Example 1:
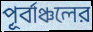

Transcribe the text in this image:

পূর্বাঞ্চলের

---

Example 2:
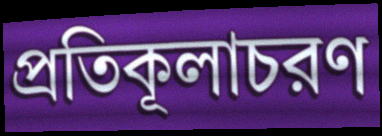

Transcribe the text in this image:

প্রতিকূলাচরণ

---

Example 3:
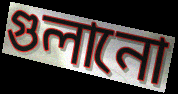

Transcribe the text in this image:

গুলানো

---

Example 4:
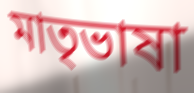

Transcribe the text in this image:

মাতৃভাষা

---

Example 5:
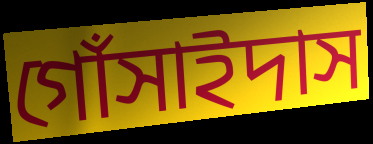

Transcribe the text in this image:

গোঁসাইদাস